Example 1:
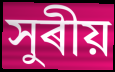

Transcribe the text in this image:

সুৰীয়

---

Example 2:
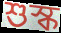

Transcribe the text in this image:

শুস্ক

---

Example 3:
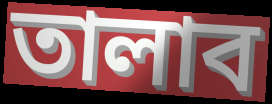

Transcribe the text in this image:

তালাব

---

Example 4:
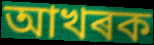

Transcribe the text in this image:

আখৰক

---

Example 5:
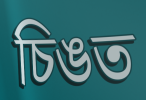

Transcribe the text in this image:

চিঙত